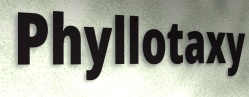
Phyllotaxy